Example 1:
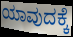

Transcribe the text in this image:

ಯಾವುದಕ್ಕೆ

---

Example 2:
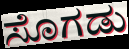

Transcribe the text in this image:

ಸೊಗಡು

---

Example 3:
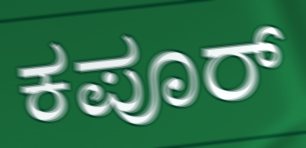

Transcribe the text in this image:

ಕಪೂರ್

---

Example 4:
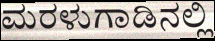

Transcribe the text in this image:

ಮರಳುಗಾಡಿನಲ್ಲಿ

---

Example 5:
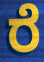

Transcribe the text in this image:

ರೆ